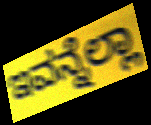
ಇವನ್ನೆಲ್ಲಾ